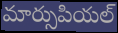
మార్సుపియల్